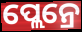
ପ୍ଲେନ୍ରେ